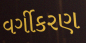
વર્ગીકરણ